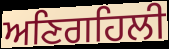
ਅਣਿਗਹਿਲੀ